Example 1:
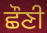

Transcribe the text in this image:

ਛੌਣੀ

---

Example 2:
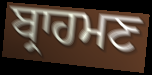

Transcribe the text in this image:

ਬ੍ਰਾਹਮਣ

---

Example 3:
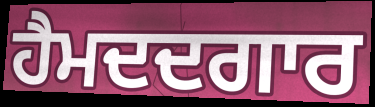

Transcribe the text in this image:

ਹੈਮਦਦਗਾਰ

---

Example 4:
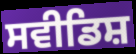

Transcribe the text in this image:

ਸਵੀਡਿਸ਼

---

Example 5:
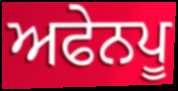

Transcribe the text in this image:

ਅਫੇਨਪੂ